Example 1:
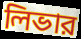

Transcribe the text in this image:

লিভার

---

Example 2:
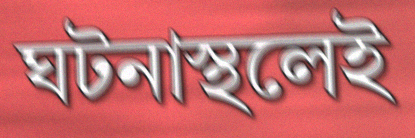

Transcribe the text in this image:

ঘটনাস্থলেই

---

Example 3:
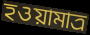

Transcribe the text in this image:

হওয়ামাত্র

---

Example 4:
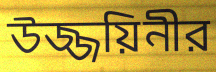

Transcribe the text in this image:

উজ্জয়িনীর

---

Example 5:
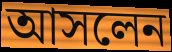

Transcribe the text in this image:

আসলেন